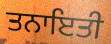
ਤਨਾਇਤੀ